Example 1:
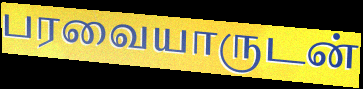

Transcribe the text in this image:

பரவையாருடன்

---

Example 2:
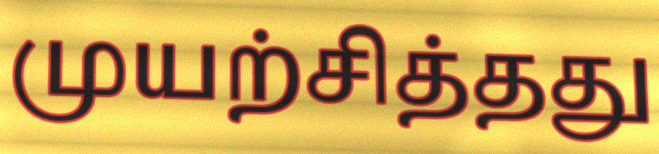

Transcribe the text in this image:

முயற்சித்தது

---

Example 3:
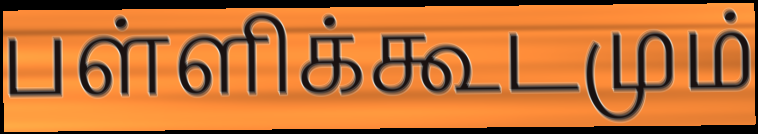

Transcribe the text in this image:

பள்ளிக்கூடமும்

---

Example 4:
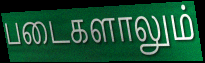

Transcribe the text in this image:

படைகளாலும்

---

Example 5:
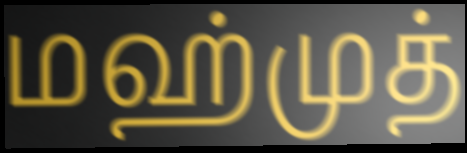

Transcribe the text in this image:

மஹ்முத்